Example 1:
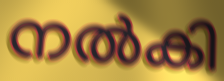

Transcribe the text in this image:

നൽകി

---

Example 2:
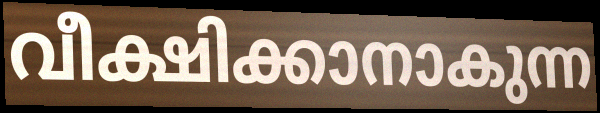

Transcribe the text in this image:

വീക്ഷിക്കാനാകുന്ന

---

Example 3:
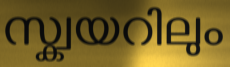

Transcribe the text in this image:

സ്ക്വയറിലും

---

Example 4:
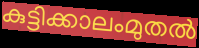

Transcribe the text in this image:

കുട്ടിക്കാലംമുതൽ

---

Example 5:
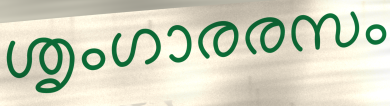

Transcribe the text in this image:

ശൃംഗാരരസം